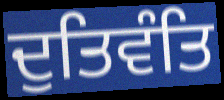
ਦੁਤਿਵੰਤਿ